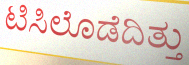
ಟಿಸಿಲೊಡೆದಿತ್ತು